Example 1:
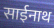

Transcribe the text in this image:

साईनाथ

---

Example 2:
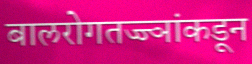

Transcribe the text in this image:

बालरोगतज्ज्ञांकडून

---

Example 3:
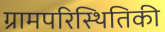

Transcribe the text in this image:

ग्रामपरिस्थितिकी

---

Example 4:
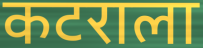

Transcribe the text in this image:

कटराला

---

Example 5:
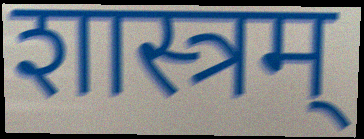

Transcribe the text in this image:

शास्त्रम्